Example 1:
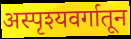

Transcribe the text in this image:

अस्पृश्यवर्गातून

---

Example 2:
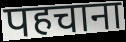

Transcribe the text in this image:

पहचाना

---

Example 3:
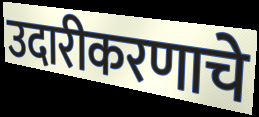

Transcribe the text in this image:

उदारीकरणाचे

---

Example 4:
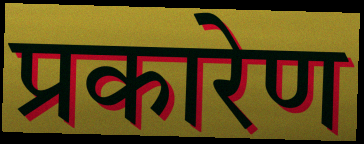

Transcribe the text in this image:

प्रकारेण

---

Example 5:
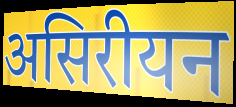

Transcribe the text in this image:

असिरीयन